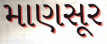
માણસૂર